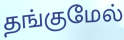
தங்குமேல்